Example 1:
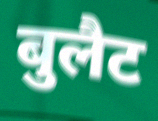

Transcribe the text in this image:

बुलैट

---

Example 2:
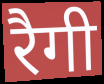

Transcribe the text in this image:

रैगी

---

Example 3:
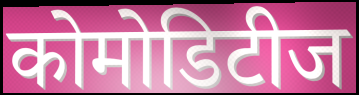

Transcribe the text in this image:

कोमोडिटीज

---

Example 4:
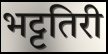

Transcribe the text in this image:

भट्टतिरी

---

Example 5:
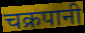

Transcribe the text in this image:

चक्रपानी